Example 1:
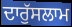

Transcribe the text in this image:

ਦਾਰੁੱਸਲਾਮ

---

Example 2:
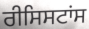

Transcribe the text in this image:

ਰੀਸਿਸਟਾਂਸ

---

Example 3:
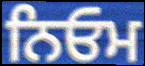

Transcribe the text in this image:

ਨਿਓਮ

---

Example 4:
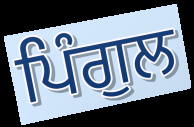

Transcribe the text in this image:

ਪਿੰਗੁਲ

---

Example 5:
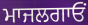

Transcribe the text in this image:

ਮਾਜਲਗਾਓਂ